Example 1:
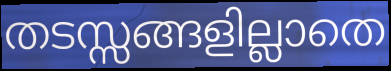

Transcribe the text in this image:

തടസ്സങ്ങളില്ലാതെ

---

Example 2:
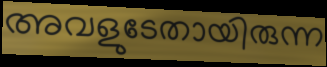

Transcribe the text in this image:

അവളുടേതായിരുന്ന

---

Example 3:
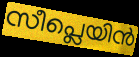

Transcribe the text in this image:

സീപ്ലെയിൻ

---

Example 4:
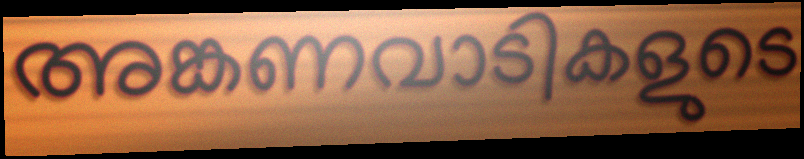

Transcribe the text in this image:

അങ്കണവാടികളുടെ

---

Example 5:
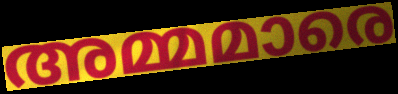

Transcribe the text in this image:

അമ്മമാരെ